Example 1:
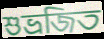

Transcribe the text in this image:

শুভ্রজিত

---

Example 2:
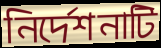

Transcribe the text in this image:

নির্দেশনাটি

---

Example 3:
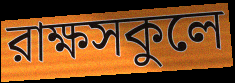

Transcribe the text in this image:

রাক্ষসকুলে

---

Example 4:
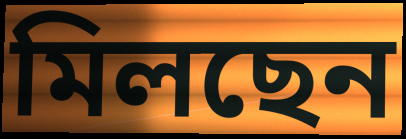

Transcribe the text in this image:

মিলছেন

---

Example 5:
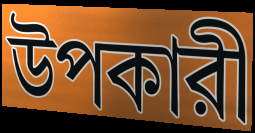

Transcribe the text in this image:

উপকারী